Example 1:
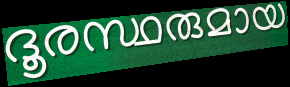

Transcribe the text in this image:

ദൂരസ്ഥരുമായ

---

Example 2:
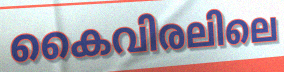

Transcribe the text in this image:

കൈവിരലിലെ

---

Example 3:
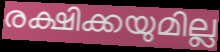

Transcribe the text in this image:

രക്ഷിക്കയുമില്ല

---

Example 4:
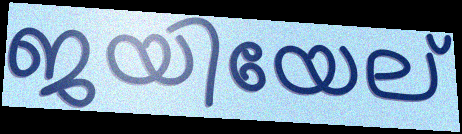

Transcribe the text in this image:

ജയിയേല്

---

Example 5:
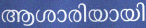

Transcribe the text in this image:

ആശാരിയായി